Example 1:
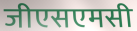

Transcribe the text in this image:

जीएसएमसी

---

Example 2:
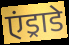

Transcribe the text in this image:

एंड्राडे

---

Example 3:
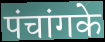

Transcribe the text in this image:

पंचांगके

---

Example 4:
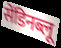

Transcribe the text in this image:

सेंडिनब्लू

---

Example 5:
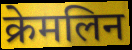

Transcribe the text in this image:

क्रेमलिन